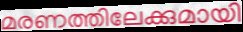
മരണത്തിലേക്കുമായി